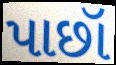
પાછૉ